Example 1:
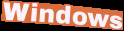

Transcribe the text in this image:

Windows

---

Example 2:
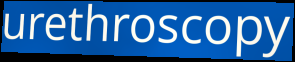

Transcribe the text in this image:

urethroscopy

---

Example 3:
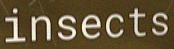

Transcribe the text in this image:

insects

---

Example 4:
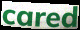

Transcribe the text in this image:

cared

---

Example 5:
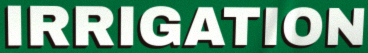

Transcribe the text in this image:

IRRIGATION